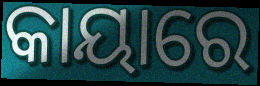
କାୟାରେ